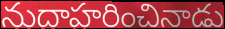
నుదాహరించినాడు